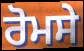
ਰੋਮਸੇ